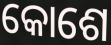
କୋଶେ